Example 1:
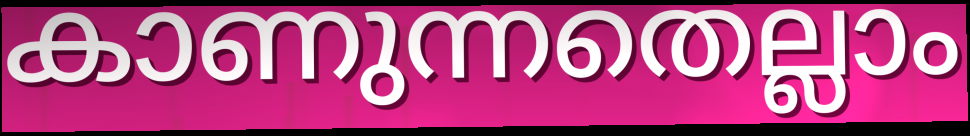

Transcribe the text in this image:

കാണുന്നതെല്ലാം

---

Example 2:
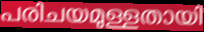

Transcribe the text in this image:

പരിചയമുള്ളതായി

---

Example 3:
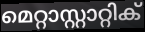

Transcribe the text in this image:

മെറ്റാസ്റ്റാറ്റിക്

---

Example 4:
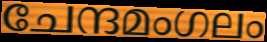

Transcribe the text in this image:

ചേന്ദമംഗലം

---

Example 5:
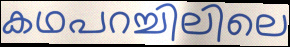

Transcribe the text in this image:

കഥപറച്ചിലിലെ